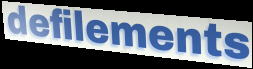
defilements